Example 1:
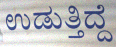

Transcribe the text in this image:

ಉಡುತ್ತಿದ್ದೆ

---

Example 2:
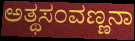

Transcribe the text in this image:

ಅತ್ಥಸಂವಣ್ಣನಾ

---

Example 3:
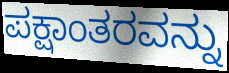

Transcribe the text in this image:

ಪಕ್ಷಾಂತರವನ್ನು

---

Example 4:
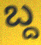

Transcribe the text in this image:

ಬ್ದ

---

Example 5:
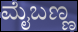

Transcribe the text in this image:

ಮೈಬಣ್ಣ